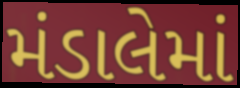
મંડાલેમાં